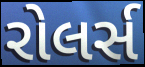
રોલર્સ